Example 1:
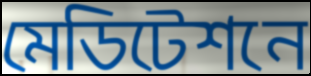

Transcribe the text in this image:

মেডিটেশনে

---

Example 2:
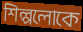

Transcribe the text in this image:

শিল্পলোকে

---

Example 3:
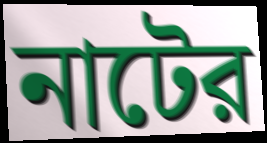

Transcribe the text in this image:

নাটের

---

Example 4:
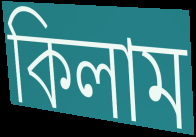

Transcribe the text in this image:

কিলাম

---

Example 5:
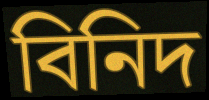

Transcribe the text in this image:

বিনিদ